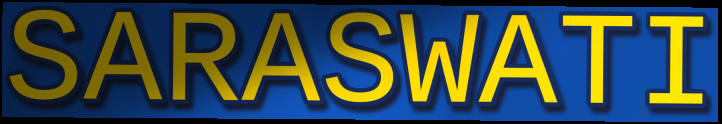
SARASWATI